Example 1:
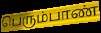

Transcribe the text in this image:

பெரும்பாண்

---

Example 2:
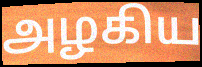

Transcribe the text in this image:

அழகிய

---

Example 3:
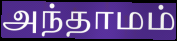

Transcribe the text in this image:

அந்தாமம்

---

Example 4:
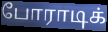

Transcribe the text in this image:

போராடிக்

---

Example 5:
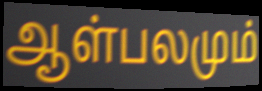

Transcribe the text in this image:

ஆள்பலமும்